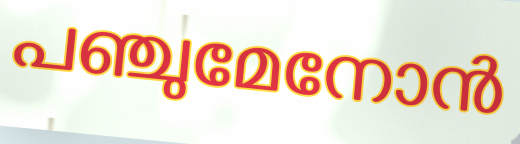
പഞ്ചുമേനോൻ